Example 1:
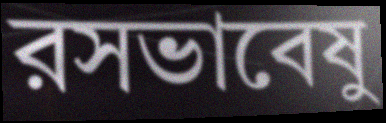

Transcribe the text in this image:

রসভাবেষু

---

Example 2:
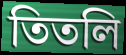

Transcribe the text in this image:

তিতলি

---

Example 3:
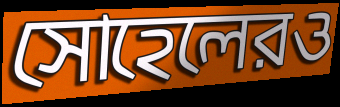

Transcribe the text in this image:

সোহেলেরও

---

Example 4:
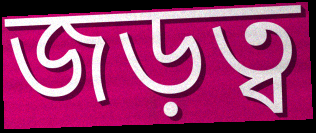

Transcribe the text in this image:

জড়ত্ব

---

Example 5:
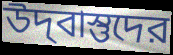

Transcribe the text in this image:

উদ্‌বাস্তুদের